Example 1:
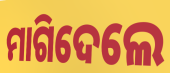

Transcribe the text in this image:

ମାଗିଦେଲେ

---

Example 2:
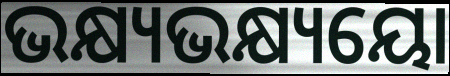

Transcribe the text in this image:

ଭକ୍ଷ୍ୟଭକ୍ଷ୍ୟୟୋ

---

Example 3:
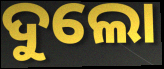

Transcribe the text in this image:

ଦୁଲୋ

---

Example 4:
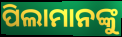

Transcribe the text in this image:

ପିଲାମାନଙ୍କୁ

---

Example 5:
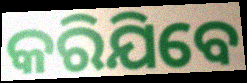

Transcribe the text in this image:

କରିଯିବେ